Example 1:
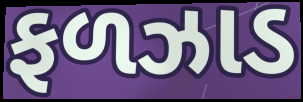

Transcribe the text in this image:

ફળઝાડ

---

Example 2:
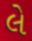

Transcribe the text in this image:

લે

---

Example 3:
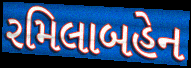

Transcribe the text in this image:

રમિલાબહેન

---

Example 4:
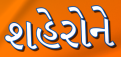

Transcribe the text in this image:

શહેરોને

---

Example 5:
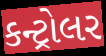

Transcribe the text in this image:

કન્ટ્રોલર